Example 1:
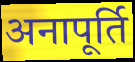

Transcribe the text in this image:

अनापूर्ति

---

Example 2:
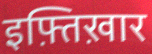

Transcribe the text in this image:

इफ़्तिख़ार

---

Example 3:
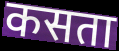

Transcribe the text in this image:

कसता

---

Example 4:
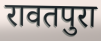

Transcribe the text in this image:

रावतपुरा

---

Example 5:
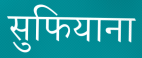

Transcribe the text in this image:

सुफियाना